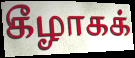
கீழாகக்